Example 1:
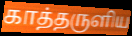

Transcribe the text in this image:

காத்தருளிய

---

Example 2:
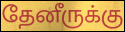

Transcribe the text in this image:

தேனீருக்கு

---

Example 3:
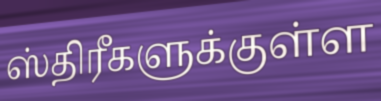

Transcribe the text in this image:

ஸ்திரீகளுக்குள்ள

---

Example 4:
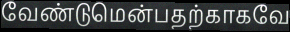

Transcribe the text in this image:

வேண்டுமென்பதற்காகவே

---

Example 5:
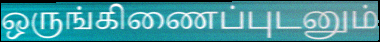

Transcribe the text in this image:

ஒருங்கிணைப்புடனும்